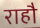
राहौ